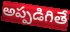
అప్పడిగితే